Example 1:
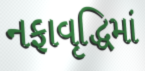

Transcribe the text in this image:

નફાવૃદ્ધિમાં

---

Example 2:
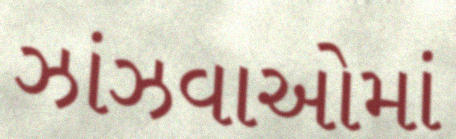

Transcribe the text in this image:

ઝાંઝવાઓમાં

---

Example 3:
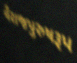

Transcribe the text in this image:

વૈરાજપુરુષરૂપ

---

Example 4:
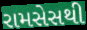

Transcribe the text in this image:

રામસેસથી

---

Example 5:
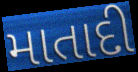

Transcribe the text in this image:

માતાદી